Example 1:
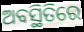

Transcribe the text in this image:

ଅବସ୍ଥିତିରେ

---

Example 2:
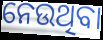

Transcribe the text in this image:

ନେଉଥିବା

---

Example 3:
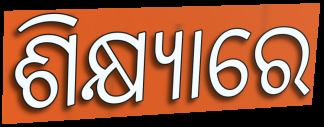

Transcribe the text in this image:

ଶିକ୍ଷ୍ୟାରେ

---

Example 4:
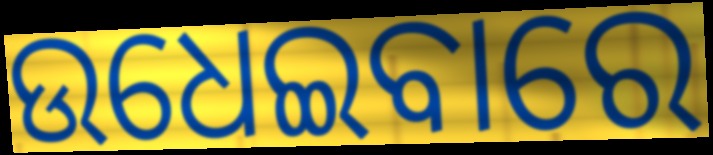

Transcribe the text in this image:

ଉଧେଇବାରେ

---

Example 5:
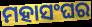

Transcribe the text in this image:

ମହାସଂଘର